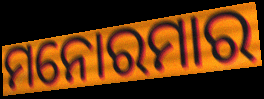
ମନୋରମାର